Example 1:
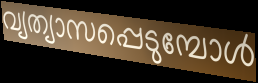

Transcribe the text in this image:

വ്യത്യാസപ്പെടുമ്പോൾ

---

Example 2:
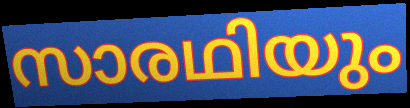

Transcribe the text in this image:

സാരഥിയും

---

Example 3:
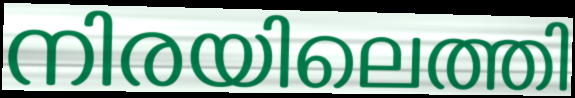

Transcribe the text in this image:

നിരയിലെത്തി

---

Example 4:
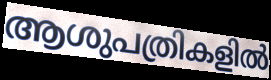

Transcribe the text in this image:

ആശുപത്രികളിൽ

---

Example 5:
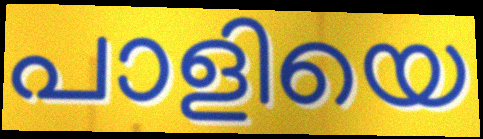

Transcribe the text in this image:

പാളിയെ